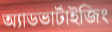
অ্যাডভার্টাইজিং